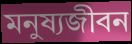
মনুষ্যজীবন